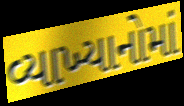
વ્યાખ્યાનોમાં